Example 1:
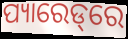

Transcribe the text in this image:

ପ୍ୟାରେଡ୍‌ରେ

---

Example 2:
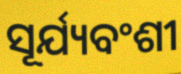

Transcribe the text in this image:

ସୂର୍ଯ୍ୟବଂଶୀ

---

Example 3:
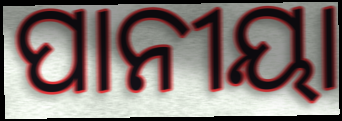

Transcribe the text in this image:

ପାନୀୟା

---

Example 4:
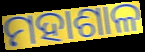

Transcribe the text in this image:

ମହାଶାଳ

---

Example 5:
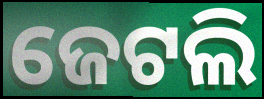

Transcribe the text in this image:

ଜେଟଲି